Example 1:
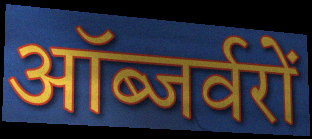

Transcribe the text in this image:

ऑब्जर्वरों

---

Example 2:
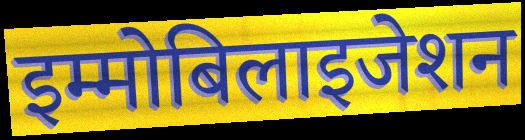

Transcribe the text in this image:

इम्मोबिलाइजेशन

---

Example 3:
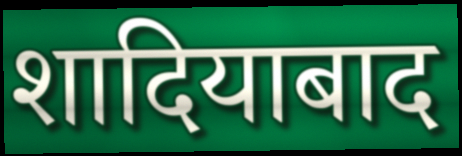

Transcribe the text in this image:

शादियाबाद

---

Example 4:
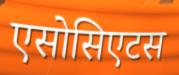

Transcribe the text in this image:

एसोसिएटस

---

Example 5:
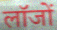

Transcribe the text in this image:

लॉजों